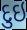
દુઇ